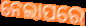
ନେଲାପରେ